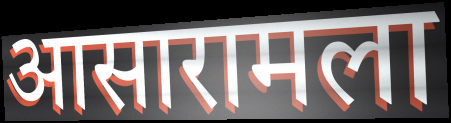
आसारामला